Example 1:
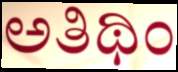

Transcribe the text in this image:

ಅತಿಥಿಂ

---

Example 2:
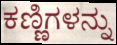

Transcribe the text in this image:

ಕಣ್ಣಿಗಳನ್ನು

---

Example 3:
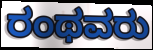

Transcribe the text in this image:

ರಂಥವರು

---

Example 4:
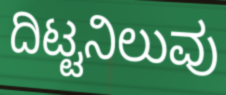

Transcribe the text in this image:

ದಿಟ್ಟನಿಲುವು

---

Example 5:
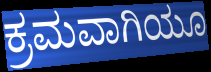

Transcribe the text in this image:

ಕ್ರಮವಾಗಿಯೂ